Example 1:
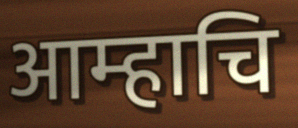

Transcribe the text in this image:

आम्हाचि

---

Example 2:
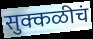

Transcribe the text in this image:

सुक्कळीचं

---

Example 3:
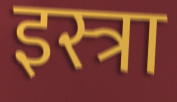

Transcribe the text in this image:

इस्त्रा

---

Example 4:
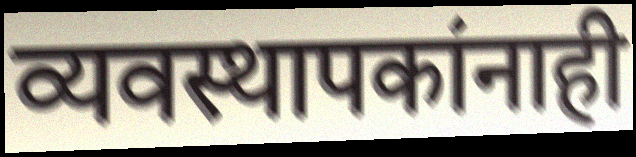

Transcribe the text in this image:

व्यवस्थापकांनाही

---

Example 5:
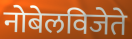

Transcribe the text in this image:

नोबेलविजेते